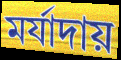
মর্যাদায়